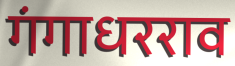
गंगाधरराव